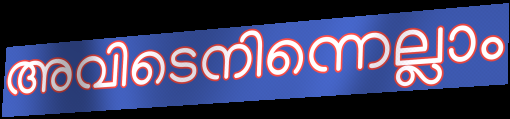
അവിടെനിന്നെല്ലാം